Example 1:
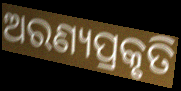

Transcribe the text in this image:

ଅରଣ୍ୟପ୍ରକୃତି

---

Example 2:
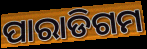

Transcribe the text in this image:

ପାରାଡିଗମ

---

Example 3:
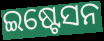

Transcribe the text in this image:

ଇଷ୍ଟେସନ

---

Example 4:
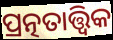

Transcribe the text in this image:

ପ୍ରତ୍ନତାତ୍ତ୍ଵିକ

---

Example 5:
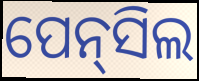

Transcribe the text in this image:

ପେନ୍‌ସିଲ